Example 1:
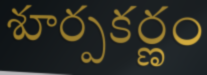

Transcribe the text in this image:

శూర్పకర్ణం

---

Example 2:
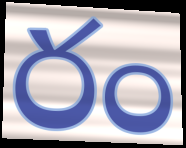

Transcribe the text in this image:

రం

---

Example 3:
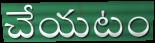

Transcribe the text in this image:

చేయటం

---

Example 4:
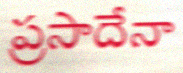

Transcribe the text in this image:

ప్రసాదేనా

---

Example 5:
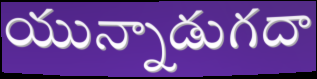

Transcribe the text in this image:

యున్నాడుగదా